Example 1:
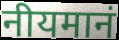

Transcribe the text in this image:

नीयमानं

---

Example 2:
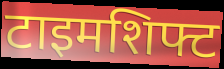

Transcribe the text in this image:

टाइमशिफ्ट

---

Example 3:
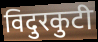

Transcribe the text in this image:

विदुरकुटी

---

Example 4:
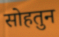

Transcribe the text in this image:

सोहतुन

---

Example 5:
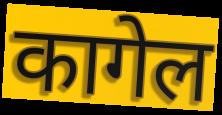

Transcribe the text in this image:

कागेल